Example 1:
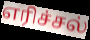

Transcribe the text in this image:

எரிச்சல்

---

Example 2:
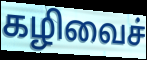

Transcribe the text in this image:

கழிவைச்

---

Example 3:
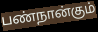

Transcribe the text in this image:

பண்நான்கும்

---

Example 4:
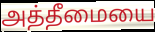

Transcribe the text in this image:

அத்தீமையை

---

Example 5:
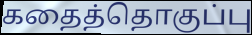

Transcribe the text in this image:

கதைத்தொகுப்பு